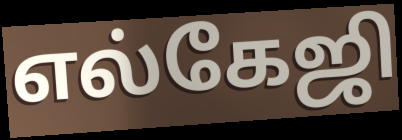
எல்கேஜி